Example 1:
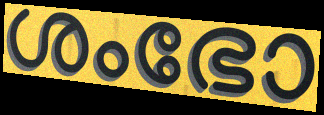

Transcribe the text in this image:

ശംഭോ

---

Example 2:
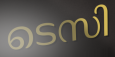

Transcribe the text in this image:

ടെസി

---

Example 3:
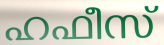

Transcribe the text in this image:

ഹഫീസ്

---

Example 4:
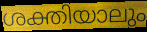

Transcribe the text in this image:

ശക്തിയാലും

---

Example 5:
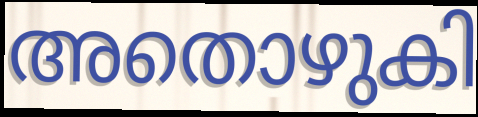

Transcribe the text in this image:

അതൊഴുകി